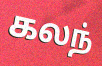
கலந்